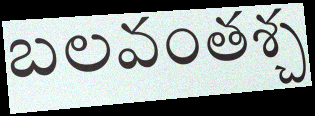
బలవంతశ్చ